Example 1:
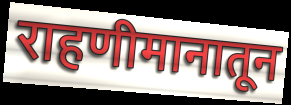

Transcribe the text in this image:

राहणीमानातून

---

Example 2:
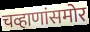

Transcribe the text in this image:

चव्हाणांसमोर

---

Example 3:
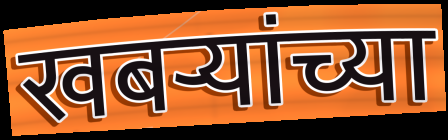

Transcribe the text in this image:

खबऱ्यांच्या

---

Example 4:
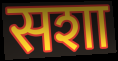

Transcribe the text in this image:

सशा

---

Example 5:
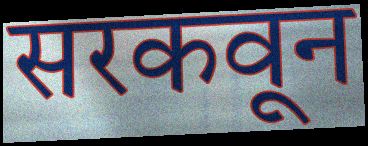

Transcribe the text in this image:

सरकवून